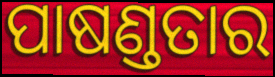
ପାଷଣ୍ଡତାର